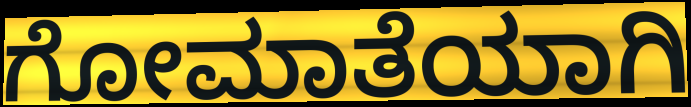
ಗೋಮಾತೆಯಾಗಿ